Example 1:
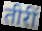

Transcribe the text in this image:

तीरीं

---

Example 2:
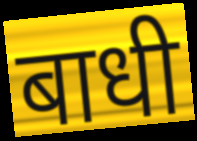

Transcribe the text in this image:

बाधी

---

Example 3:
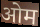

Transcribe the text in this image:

ओम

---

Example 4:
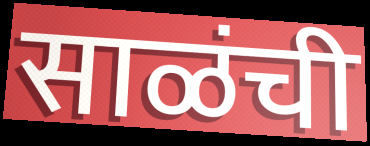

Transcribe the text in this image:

साळंची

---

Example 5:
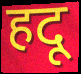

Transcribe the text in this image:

हदू